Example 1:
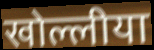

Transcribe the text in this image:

खोल्लीया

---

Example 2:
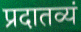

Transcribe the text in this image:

प्रदातव्यं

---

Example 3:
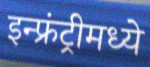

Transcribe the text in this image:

इन्फ्रंट्रीमध्ये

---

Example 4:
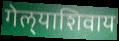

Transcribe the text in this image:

गेल्याशिवाय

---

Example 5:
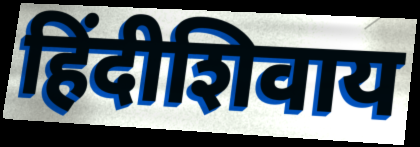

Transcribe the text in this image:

हिंदीशिवाय